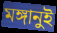
মঙ্গানুই